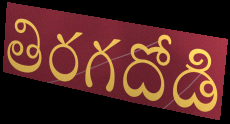
తిరగదోడి